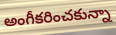
అంగీకరించకున్నా